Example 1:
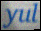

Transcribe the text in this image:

yul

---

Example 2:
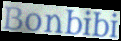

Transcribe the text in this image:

Bonbibi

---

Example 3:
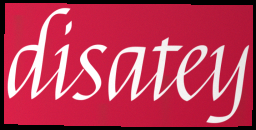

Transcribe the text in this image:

disatey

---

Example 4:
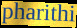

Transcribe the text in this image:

pharithi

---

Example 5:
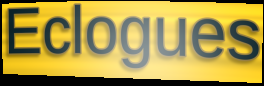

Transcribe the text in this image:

Eclogues